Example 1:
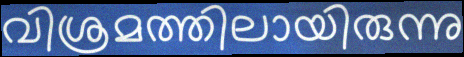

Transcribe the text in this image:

വിശ്രമത്തിലായിരുന്നു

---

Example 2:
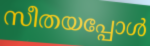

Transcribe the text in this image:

സീതയപ്പോൾ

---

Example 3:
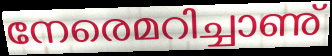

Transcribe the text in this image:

നേരെമറിച്ചാണു്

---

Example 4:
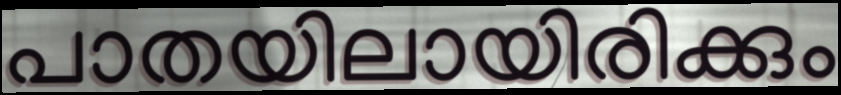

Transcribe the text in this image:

പാതയിലായിരിക്കും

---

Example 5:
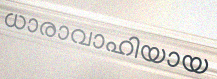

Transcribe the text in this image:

ധാരാവാഹിയായ